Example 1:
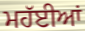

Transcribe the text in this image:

ਮਹੱਈਆਂ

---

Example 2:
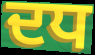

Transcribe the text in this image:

ਦਧ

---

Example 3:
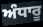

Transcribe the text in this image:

ਅੰਧਾਰੂ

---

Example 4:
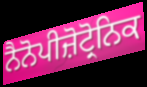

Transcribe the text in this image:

ਨੈਨੋਪੀਜ਼ੋਟ੍ਰੋਨਿਕ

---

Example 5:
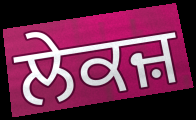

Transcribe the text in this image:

ਲੇਕਜ਼